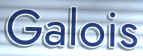
Galois